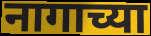
नागाच्या